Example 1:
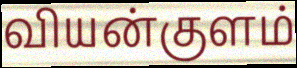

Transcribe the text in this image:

வியன்குளம்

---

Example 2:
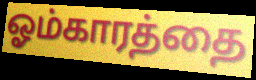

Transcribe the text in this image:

ஓம்காரத்தை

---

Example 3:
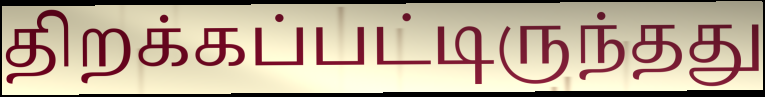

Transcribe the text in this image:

திறக்கப்பட்டிருந்தது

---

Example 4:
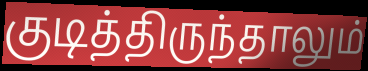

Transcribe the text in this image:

குடித்திருந்தாலும்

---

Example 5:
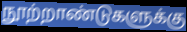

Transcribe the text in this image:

நூற்றாண்டுகளுக்கு